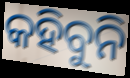
କହିବୁନି